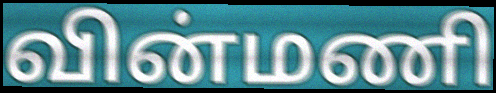
வின்மணி